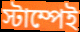
স্টাম্পেই